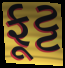
ફૂટ્ટ